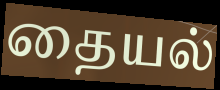
தையல்